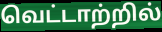
வெட்டாற்றில்